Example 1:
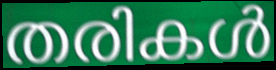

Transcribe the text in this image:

തരികൾ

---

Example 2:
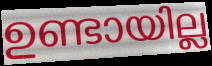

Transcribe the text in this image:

ഉണ്ടായില്ല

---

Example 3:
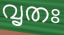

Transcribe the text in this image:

വൃതഃ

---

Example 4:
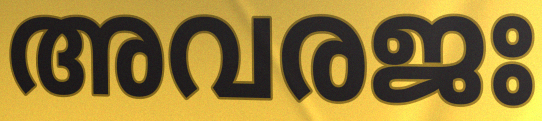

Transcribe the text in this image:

അവരജഃ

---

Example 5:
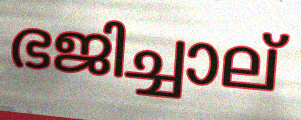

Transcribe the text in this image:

ഭജിച്ചാല്